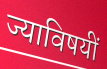
ज्याविषयीं